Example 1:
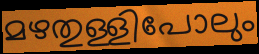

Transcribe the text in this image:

മഴതുള്ളിപോലും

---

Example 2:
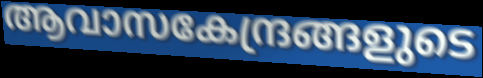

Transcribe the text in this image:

ആവാസകേന്ദ്രങ്ങളുടെ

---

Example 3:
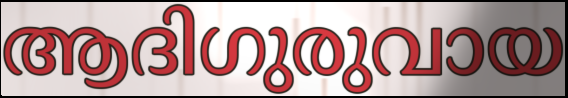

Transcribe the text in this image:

ആദിഗുരുവായ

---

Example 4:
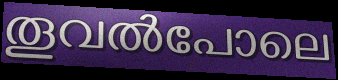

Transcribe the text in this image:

തൂവൽപോലെ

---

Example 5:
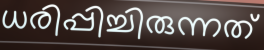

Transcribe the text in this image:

ധരിപ്പിച്ചിരുന്നത്